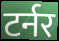
टर्नर